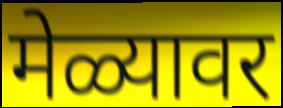
मेळ्यावर